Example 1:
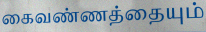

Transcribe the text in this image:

கைவண்ணத்தையும்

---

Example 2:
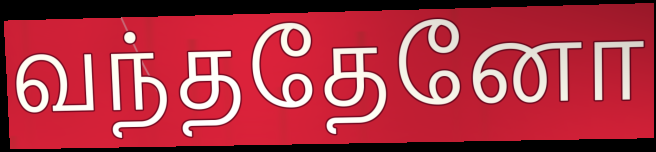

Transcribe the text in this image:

வந்ததேனோ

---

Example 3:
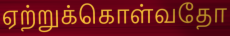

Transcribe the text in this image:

ஏற்றுக்கொள்வதோ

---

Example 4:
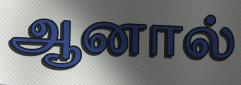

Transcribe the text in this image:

ஆனால்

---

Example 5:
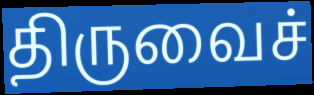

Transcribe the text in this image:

திருவைச்